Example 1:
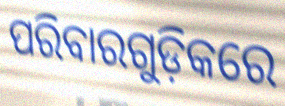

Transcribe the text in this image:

ପରିବାରଗୁଡ଼ିକରେ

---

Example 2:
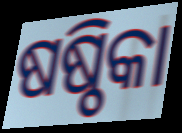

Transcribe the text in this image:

ଷଷ୍ଠିକା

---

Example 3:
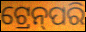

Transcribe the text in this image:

ଟ୍ରେନ୍‌ପରି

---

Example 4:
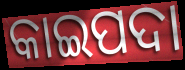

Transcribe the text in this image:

କାଇପଦା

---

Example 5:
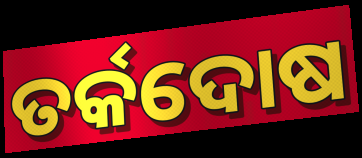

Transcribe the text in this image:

ତର୍କଦୋଷ